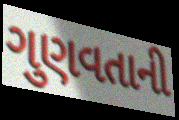
ગુણવતાની